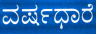
ವರ್ಷಧಾರೆ